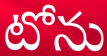
టోను